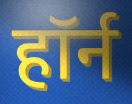
हॉर्न